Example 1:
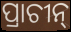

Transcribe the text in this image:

ପ୍ରାଚୀନ୍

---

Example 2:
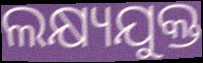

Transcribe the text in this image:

ଲକ୍ଷ୍ୟଯୁକ୍ତ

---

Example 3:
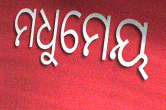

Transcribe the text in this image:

ମଧୁମେୟ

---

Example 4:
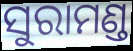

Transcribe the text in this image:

ସୁରାମଣ୍ଡ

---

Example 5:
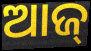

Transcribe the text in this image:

ଆଜ୍